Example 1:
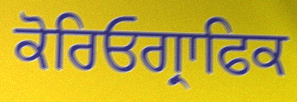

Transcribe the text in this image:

ਕੋਰਿਓਗ੍ਰਾਫਿਕ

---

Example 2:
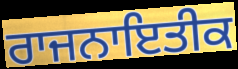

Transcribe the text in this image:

ਰਾਜਨਾਇਤੀਕ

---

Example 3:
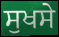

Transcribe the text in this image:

ਸੁਖਸੇ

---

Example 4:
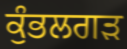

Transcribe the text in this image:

ਕੁੰਭਲਗੜ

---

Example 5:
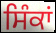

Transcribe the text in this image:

ਸਿੰਕਾਂ